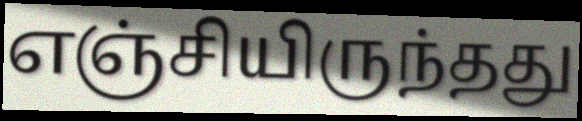
எஞ்சியிருந்தது